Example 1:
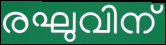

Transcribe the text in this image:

രഘുവിന്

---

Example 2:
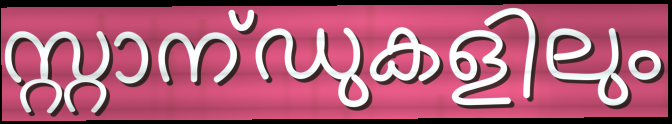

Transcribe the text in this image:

സ്റ്റാന്ഡുകളിലും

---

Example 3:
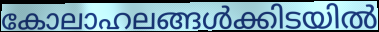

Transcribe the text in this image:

കോലാഹലങ്ങൾക്കിടയിൽ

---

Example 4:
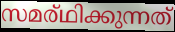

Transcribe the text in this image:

സമര്ഥിക്കുന്നത്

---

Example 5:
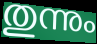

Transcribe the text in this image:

തുന്നും